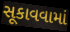
સૂકાવવામાં